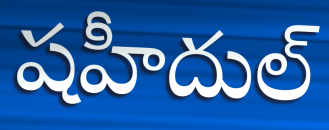
షహీదుల్